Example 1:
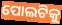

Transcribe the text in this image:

ପୋଲଟିକୁ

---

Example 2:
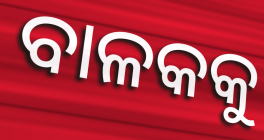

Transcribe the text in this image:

ବାଳକକୁ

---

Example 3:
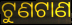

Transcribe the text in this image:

ଟୁଣଟାଣ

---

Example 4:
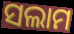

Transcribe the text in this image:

ସଲାମ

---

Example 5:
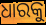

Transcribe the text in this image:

ଧାରକୁ